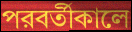
পরবর্তীকালে